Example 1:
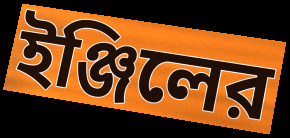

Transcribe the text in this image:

ইঞ্জিলের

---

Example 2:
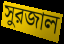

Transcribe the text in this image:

সুরজাল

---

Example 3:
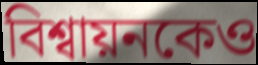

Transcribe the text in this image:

বিশ্বায়নকেও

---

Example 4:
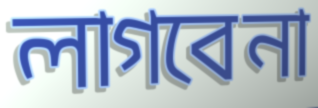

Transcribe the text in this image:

লাগবেনা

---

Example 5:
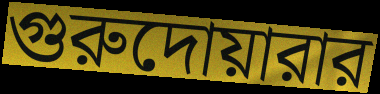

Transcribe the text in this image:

গুরুদোয়ারার